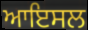
ਆਇਸਲ